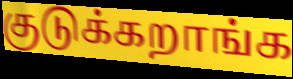
குடுக்கறாங்க